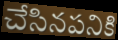
చేసినపనికి